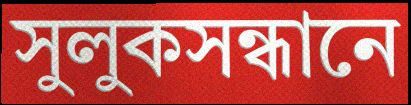
সুলুকসন্ধানে